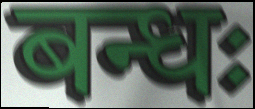
बन्धः